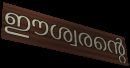
ഈശ്വരന്റെ